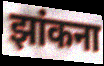
झांकना